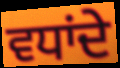
ਵਧਾਂਦੇ